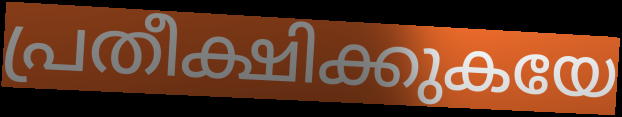
പ്രതീക്ഷിക്കുകയേ